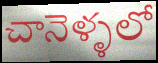
చానెళ్ళలో